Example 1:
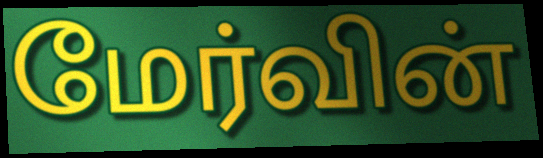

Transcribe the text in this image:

மேர்வின்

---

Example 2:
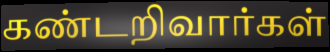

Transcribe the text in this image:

கண்டறிவார்கள்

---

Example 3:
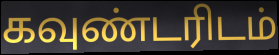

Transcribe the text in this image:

கவுண்டரிடம்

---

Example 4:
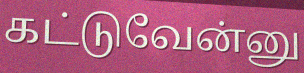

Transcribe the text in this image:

கட்டுவேன்னு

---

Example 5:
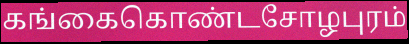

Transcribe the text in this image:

கங்கைகொண்டசோழபுரம்